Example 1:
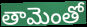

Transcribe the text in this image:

తామెంతో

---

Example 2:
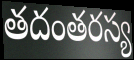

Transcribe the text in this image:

తదంతరస్య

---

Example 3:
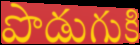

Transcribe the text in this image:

పొడుగుకి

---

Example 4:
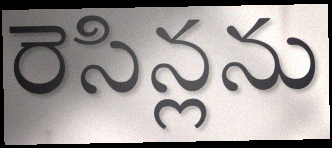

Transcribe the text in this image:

రెసిన్లను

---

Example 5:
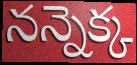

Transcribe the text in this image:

నన్నెక్క